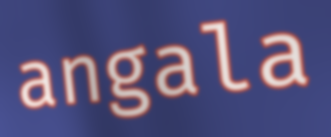
angala